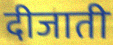
दीजाती